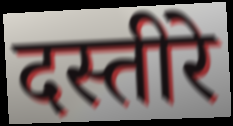
दस्तीरे